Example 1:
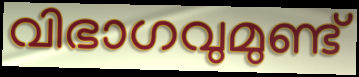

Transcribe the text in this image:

വിഭാഗവുമുണ്ട്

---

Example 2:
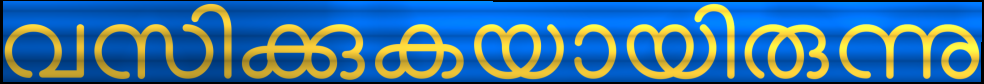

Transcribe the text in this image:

വസിക്കുകയായിരുന്നു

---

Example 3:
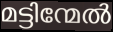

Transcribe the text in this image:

മട്ടിന്മേൽ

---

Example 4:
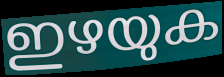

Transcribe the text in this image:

ഇഴയുക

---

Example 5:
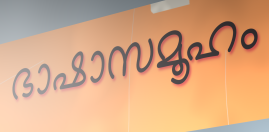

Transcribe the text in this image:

ഭാഷാസമൂഹം